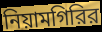
নিয়ামগিরির